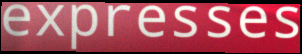
expresses